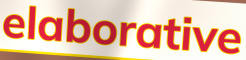
elaborative